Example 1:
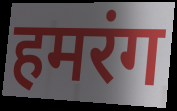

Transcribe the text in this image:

हमरंग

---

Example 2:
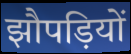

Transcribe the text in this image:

झौपड़ियों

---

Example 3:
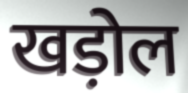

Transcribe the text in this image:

खड़ोल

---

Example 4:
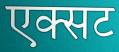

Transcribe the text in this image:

एक्सट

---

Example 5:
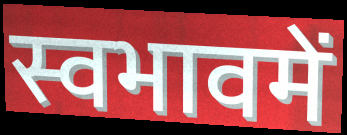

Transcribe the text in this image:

स्वभावमें